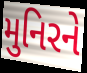
મુનિરને